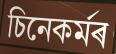
চিনেকৰ্মৰ